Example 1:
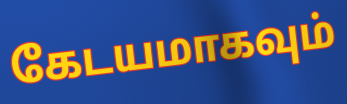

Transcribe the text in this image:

கேடயமாகவும்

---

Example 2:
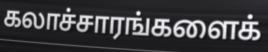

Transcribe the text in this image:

கலாச்சாரங்களைக்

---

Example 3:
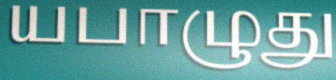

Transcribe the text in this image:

யபாழுது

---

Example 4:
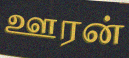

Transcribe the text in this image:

ஊரன்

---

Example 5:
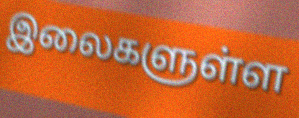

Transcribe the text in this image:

இலைகளுள்ள